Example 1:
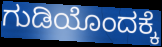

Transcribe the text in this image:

ಗುಡಿಯೊಂದಕ್ಕೆ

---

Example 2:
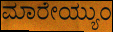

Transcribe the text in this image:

ಮಾರೇಯ್ಯುಂ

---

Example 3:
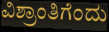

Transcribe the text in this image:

ವಿಶ್ರಾಂತಿಗೆಂದು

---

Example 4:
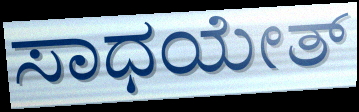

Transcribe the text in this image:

ಸಾಧಯೇತ್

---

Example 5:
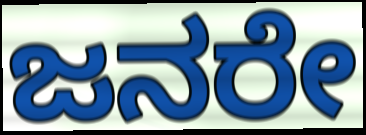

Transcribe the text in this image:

ಜನರೇ